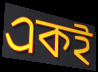
একই